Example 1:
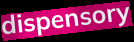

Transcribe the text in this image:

dispensory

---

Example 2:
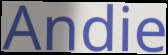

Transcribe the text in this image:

Andie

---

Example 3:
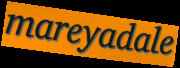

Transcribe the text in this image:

mareyadale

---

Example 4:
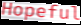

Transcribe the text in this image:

Hopeful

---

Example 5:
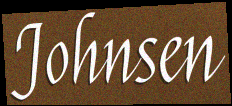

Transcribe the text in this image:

Johnsen